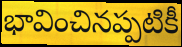
భావించినప్పటికీ